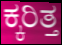
ಕ್ಕರಿತ್ತ